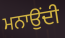
ਮਨਾਉਂਦੀ